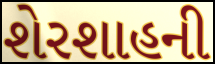
શેરશાહની